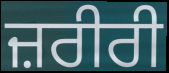
ਜ਼ਰੀਰੀ